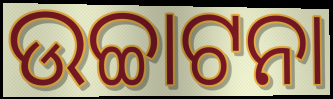
ଉଚ୍ଚାଟନା